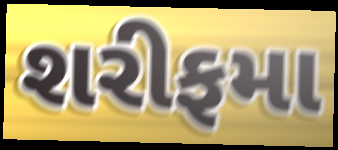
શરીફમા